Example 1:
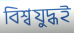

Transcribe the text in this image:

বিশ্বযুদ্ধই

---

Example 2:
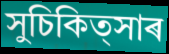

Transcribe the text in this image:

সুচিকিত্সাৰ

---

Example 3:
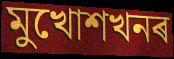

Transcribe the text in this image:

মুখোশখনৰ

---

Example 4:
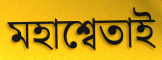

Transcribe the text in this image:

মহাশ্বেতাই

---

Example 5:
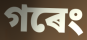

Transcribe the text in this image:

গৰেং